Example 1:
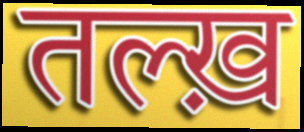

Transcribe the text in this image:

तल्ख़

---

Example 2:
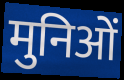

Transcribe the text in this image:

मुनिओं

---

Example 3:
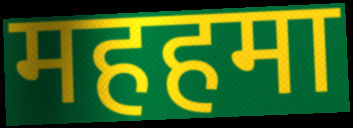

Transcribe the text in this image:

महहमा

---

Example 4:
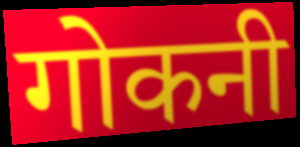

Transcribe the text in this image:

गोकनी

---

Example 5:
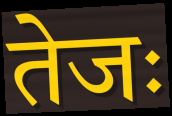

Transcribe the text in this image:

तेजः